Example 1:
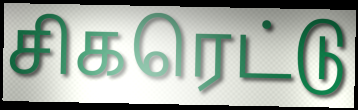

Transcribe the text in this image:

சிகரெட்டு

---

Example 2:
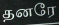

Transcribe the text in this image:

தனரே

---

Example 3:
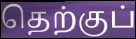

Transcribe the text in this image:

தெற்குப்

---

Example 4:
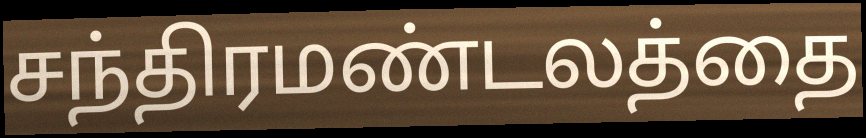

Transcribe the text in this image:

சந்திரமண்டலத்தை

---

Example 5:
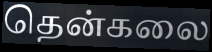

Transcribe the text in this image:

தென்கலை